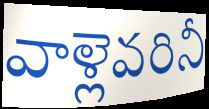
వాళ్లెవరినీ